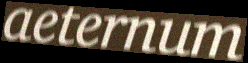
aeternum